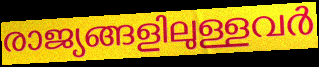
രാജ്യങ്ങളിലുള്ളവർ